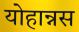
योहान्नस